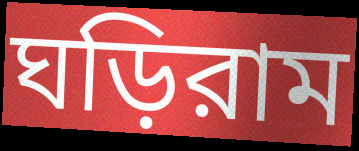
ঘড়িরাম